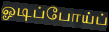
ஓடிப்போய்ப்